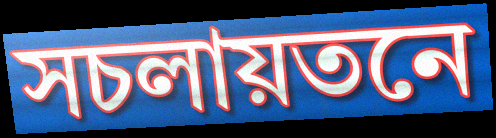
সচলায়তনে